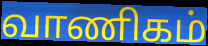
வாணிகம்